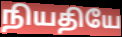
நியதியே